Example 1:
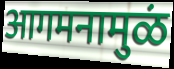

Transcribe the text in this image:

आगमनामुळं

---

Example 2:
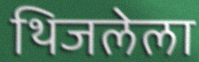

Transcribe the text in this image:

थिजलेला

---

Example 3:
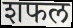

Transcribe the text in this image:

शफल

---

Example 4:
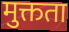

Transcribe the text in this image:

मुक्तता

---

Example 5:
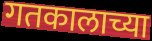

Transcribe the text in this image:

गतकालाच्या